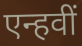
एन्हवीं